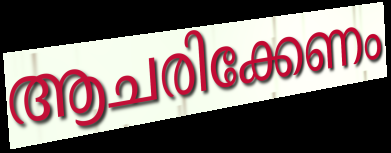
ആചരിക്കേണം